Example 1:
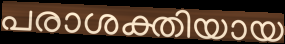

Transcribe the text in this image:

പരാശക്തിയായ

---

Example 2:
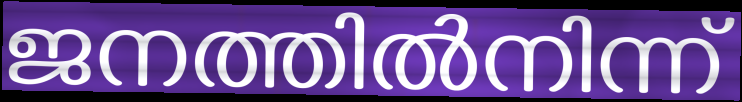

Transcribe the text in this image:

ജനത്തിൽനിന്ന്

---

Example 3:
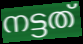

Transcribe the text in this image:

നട്ടത്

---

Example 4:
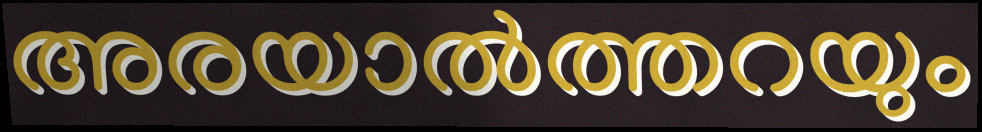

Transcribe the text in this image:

അരയാൽത്തറയും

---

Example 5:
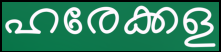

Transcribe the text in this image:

ഹരേക്കള